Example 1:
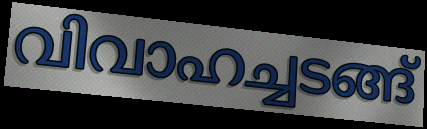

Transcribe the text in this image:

വിവാഹച്ചടങ്ങ്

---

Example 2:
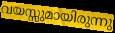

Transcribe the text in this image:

വയസ്സുമായിരുന്നു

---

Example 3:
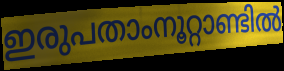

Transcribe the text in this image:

ഇരുപതാംനൂറ്റാണ്ടിൽ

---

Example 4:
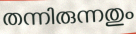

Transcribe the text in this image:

തന്നിരുന്നതും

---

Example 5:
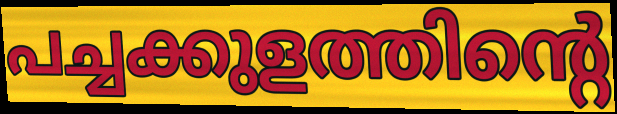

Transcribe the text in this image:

പച്ചക്കുളത്തിന്റെ